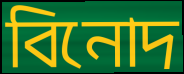
বিনোদ